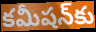
కమీషన్‌కు